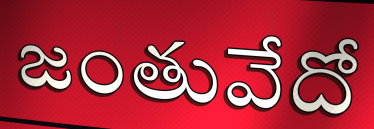
జంతువేదో